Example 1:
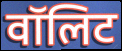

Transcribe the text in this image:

वॉलिट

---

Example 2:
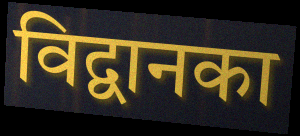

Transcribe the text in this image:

विद्वानका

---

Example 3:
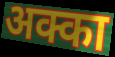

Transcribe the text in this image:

अक्का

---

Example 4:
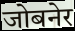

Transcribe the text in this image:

जोबनेर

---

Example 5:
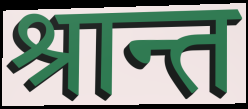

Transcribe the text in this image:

श्रान्त